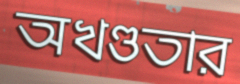
অখণ্ডতার